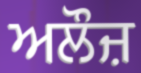
ਅਲੌਜ਼